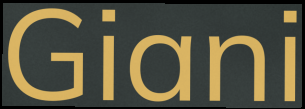
Giani